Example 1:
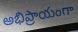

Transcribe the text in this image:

అభిప్రాయంగా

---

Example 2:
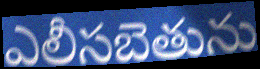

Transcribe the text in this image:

ఎలీసబెతును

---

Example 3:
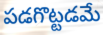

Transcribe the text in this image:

పడగొట్టడమే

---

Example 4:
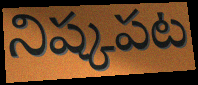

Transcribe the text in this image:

నిష్కపట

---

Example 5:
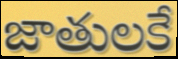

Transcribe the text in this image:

జాతులకే